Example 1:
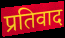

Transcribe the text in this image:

प्रतिवाद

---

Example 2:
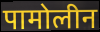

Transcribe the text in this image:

पामोलीन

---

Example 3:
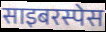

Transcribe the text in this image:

साइबरस्पेस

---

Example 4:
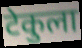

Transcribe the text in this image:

टेकुला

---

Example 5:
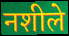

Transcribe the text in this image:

नशीले